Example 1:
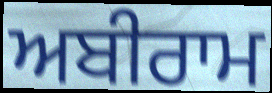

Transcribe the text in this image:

ਅਬੀਰਾਮ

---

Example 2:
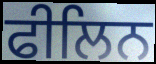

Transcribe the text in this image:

ਫੀਲਿਨ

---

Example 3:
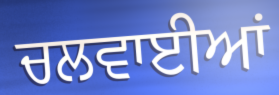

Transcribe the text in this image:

ਚਲਵਾਈਆਂ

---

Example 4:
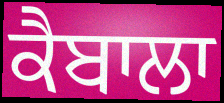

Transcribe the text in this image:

ਕੈਬਾਲਾ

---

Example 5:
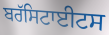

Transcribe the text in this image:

ਬਰੱਸਿਟਾਈਟਸ